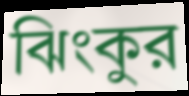
ঝিংকুর